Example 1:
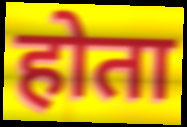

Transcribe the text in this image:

होता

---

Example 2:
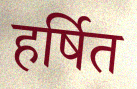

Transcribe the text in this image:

हर्षित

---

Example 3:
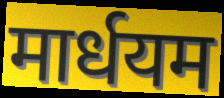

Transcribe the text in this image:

मार्धयम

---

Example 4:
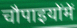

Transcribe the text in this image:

चौपाइयोंमें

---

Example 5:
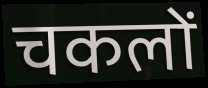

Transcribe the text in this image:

चकलों